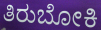
ತಿರುಬೋಕಿ